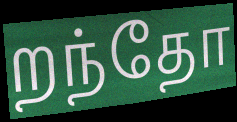
றந்தோ